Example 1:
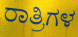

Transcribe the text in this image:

ರಾತ್ರಿಗಳ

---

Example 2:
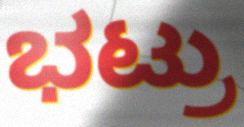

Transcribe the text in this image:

ಭಟ್ರು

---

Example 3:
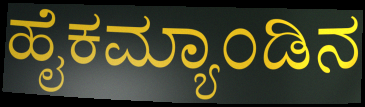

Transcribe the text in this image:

ಹೈಕಮ್ಯಾಂಡಿನ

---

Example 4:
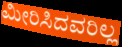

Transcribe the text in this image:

ಮೀರಿಸಿದವರಿಲ್ಲ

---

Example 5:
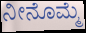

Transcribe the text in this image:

ನೀನೊಮ್ಮೆ